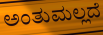
ಅಂತುಮಲ್ಲದೆ